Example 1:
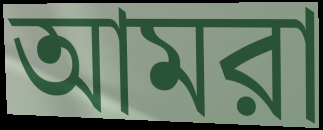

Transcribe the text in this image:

আমরা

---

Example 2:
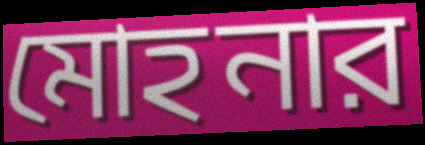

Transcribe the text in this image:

মোহনার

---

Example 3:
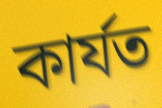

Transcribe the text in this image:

কার্যত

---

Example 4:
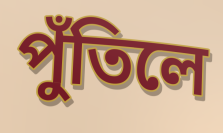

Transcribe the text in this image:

পুঁতিলে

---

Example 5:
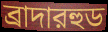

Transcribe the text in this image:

ব্রাদারহুড